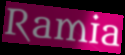
Ramia